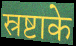
स्रष्टाके